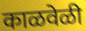
काळवेळी